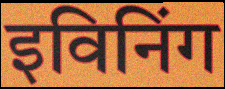
इविनिंग